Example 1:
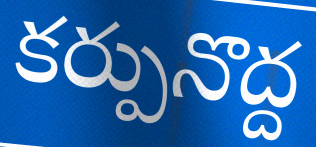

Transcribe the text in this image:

కర్పునొద్ద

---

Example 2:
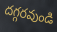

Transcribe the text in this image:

దగ్గరవుండి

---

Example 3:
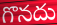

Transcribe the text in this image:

గొనదు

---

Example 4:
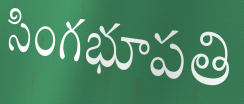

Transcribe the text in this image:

సింగభూపతి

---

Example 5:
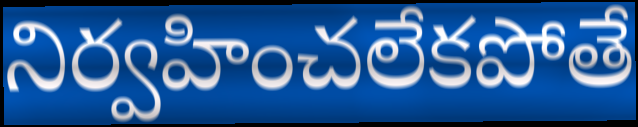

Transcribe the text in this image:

నిర్వహించలేకపోతే